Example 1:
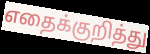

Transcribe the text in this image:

எதைக்குறித்து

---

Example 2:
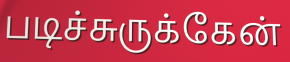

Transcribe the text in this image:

படிச்சுருக்கேன்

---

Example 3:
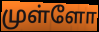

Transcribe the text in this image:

முள்ளோ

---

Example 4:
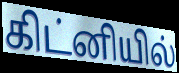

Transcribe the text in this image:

கிட்னியில்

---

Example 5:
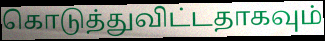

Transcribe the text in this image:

கொடுத்துவிட்டதாகவும்